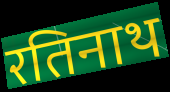
रतिनाथ